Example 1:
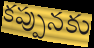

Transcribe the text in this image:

కప్పునకు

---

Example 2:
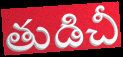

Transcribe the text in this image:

తుడిచీ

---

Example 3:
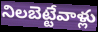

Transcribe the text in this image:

నిలబెట్టేవాళ్లు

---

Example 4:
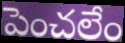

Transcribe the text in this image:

పెంచలేం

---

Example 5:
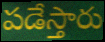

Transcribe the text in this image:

పడేస్తారు